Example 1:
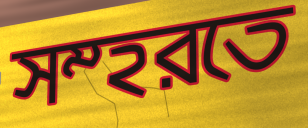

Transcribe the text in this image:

সম্হরতে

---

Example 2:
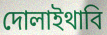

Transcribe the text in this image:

দোলাইথাবি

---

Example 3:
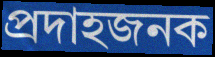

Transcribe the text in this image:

প্রদাহজনক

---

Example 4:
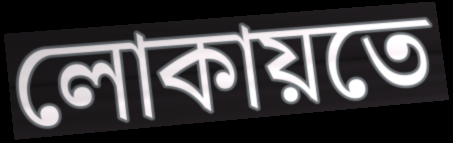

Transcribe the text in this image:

লোকায়তে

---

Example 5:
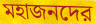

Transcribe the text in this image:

মহাজনদের